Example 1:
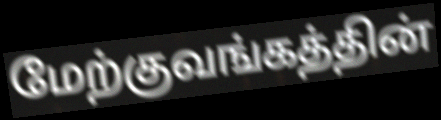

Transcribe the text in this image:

மேற்குவங்கத்தின்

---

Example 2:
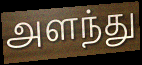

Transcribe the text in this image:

அளந்து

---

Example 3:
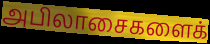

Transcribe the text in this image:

அபிலாசைகளைக்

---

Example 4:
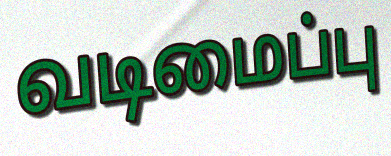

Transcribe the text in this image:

வடிமைப்பு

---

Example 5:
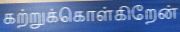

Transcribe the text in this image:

கற்றுக்கொள்கிறேன்